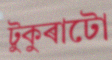
টুকুৰাটো